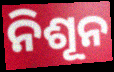
ନିଶୂନ